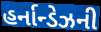
હર્નાન્ડેઝની